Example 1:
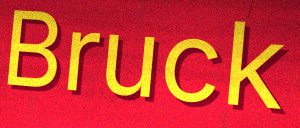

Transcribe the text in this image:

Bruck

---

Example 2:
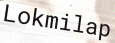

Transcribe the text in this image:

Lokmilap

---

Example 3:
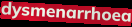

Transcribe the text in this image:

dysmenarrhoea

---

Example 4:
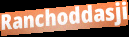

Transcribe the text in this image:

Ranchoddasji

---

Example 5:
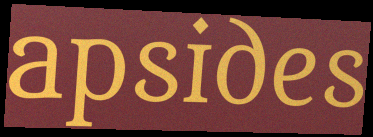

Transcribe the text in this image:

apsides